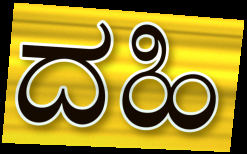
ದಹಿ